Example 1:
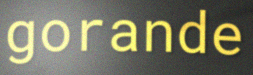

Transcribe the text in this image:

gorande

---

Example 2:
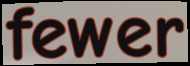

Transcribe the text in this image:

fewer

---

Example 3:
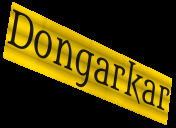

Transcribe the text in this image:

Dongarkar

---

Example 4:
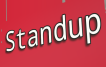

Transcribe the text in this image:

Standup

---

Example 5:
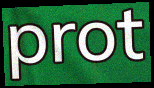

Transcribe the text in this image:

prot